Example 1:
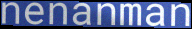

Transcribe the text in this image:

nenanman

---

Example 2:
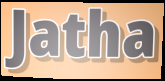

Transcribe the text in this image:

Jatha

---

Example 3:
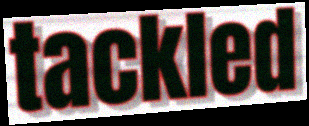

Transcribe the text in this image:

tackled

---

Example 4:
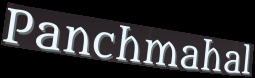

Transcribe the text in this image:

Panchmahal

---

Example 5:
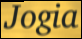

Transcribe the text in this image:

Jogia